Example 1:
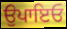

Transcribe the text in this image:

ਉਪਾਇਓ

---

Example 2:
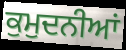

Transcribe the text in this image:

ਕੁਮੁਦਨੀਆਂ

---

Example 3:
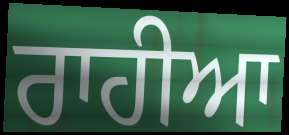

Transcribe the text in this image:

ਰਾਹੀਆ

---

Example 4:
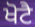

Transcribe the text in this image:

ਖੋਟੈ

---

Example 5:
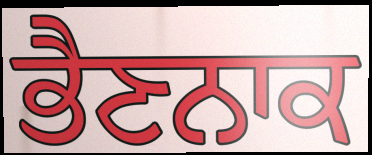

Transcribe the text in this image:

ਭੈਣਨਾਕ